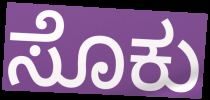
ಸೊಕು